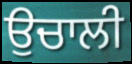
ਉਚਾਲੀ